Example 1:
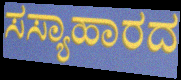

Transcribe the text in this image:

ಸಸ್ಯಾಹಾರದ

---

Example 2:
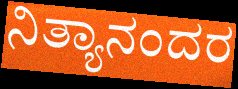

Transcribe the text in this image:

ನಿತ್ಯಾನಂದರ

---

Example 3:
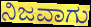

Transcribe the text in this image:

ನಿಜವಾಗು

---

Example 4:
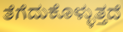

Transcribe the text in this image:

ತೆಗೆದುಕೊಳ್ಳುತ್ತದೆ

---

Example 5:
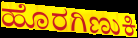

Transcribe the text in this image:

ಹೊರಗಿಣುಕಿ